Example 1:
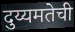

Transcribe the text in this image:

दुय्यमतेची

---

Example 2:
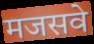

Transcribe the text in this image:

मजसवे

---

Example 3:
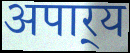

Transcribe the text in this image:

अपार्य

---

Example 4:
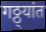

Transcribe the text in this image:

गठ्ठ्यांत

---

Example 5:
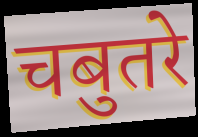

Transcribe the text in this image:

चबुतरे